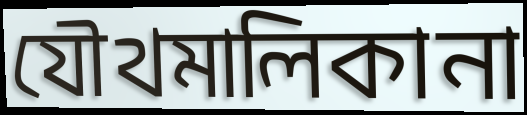
যৌথমালিকানা